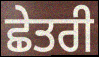
ਛੇਤਰੀ